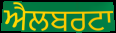
ਐਲਬਰਟਾ